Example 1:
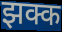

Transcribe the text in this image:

झक्क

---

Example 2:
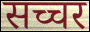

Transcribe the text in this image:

सच्चर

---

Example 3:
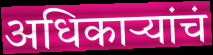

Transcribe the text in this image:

अधिकाऱ्यांचं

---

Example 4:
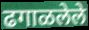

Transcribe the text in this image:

ढगाळलेले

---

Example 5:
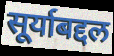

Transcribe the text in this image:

सूर्याबद्दल